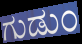
ಗುಡುಂ